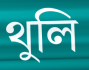
থুলি